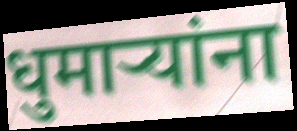
धुमाऱ्यांना